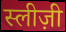
स्लीज़ी